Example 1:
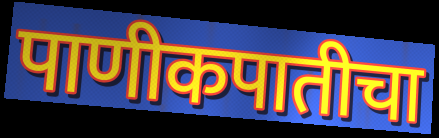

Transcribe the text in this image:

पाणीकपातीचा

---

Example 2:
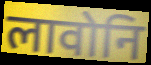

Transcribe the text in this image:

लावोनि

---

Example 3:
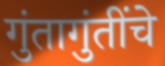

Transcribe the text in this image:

गुंतागुंतींचे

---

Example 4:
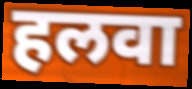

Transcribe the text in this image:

हलवा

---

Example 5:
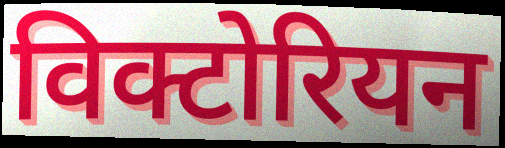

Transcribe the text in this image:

विक्टोरियन